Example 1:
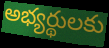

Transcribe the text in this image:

అభ్యర్థులకు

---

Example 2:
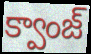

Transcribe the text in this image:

క్వాంజ్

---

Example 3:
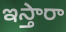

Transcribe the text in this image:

ఇస్తారా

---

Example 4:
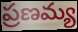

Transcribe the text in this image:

ప్రణమ్య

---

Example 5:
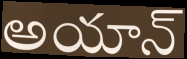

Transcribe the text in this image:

అయాన్